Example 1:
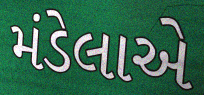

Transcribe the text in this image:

મંડેલાએ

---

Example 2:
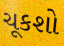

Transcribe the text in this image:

ચૂકશો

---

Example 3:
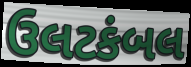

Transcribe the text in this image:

ઉલટકંબલ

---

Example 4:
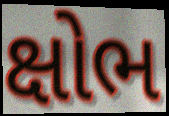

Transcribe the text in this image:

ક્ષોભ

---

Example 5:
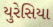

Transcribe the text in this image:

યુરેસિયા